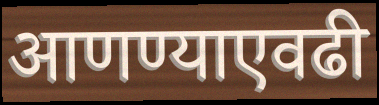
आणण्याएवढी